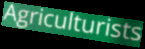
Agriculturists